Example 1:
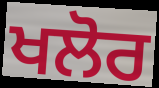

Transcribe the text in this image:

ਖਲੋਰ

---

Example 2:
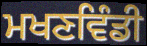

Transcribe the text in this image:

ਮਖਣਵਿੰਡੀ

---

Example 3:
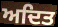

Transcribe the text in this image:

ਅਦਿਤ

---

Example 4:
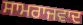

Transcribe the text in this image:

ਸਾਮਰਾਜਵਾਦ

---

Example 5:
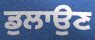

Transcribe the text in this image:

ਡੁਲਾਉਣ